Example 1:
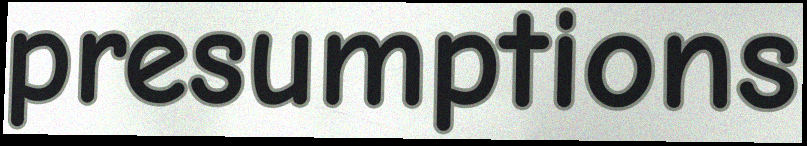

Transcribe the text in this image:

presumptions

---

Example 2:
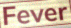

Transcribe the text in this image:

Fever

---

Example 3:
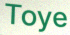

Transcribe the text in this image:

Toye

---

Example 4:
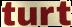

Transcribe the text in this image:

turt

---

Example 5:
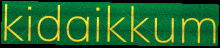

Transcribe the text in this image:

kidaikkum